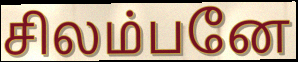
சிலம்பனே